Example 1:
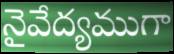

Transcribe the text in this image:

నైవేద్యముగా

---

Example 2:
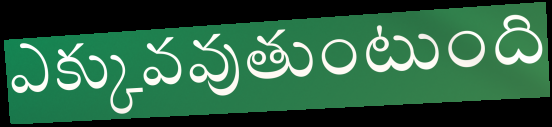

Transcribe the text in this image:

ఎక్కువవుతుంటుంది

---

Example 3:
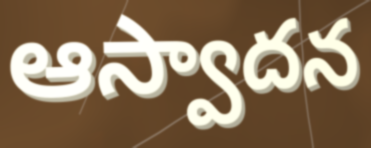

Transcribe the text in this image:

ఆస్వాదన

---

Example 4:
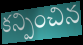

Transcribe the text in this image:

కన్పించిన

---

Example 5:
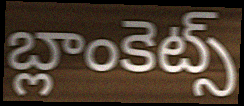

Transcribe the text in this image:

బ్లాంకెట్స్